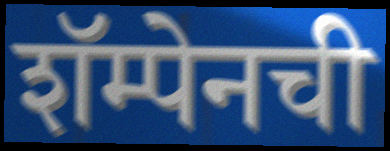
शॅम्पेनची